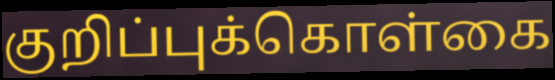
குறிப்புக்கொள்கை